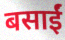
बसाईं